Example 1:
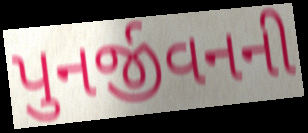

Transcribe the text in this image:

પુનર્જીવનની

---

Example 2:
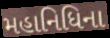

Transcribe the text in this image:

મહાનિધિના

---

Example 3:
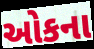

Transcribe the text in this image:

ઓકના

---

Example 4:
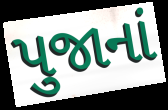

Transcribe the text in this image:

પુજાનાં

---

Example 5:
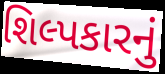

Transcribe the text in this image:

શિલ્પકારનું